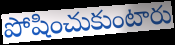
పోషించుకుంటారు